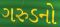
ગરુડનો